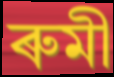
ৰুমী